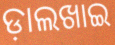
ଡ଼ାଲଖାଇ